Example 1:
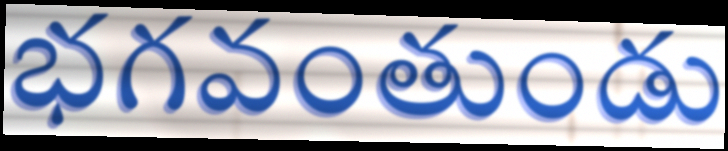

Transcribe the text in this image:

భగవంతుండు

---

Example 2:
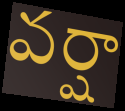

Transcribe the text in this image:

వర్షా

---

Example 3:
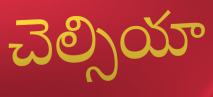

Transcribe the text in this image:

చెల్సియా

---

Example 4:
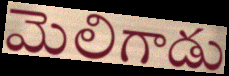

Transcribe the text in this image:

మెలిగాడు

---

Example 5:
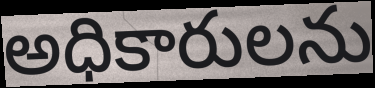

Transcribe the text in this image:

అధికారులను